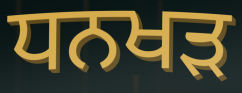
ਧਨਖਡ਼